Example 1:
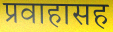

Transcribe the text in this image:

प्रवाहासह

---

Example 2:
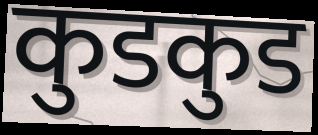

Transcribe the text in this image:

कुडकुड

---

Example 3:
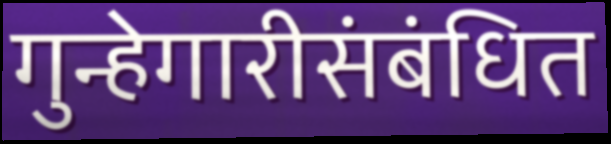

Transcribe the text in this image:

गुन्हेगारीसंबंधित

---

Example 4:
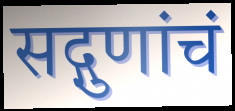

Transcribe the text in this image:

सद्गुणांचं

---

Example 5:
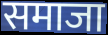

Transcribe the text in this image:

समाजा